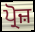
ਪ੍ਰੋਜ਼